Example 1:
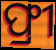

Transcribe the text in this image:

ଫ୍ରୀ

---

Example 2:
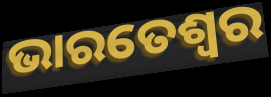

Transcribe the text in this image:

ଭାରତେଶ୍ୱର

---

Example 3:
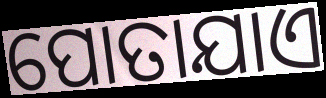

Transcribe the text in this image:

ପୋତାଯାଏ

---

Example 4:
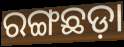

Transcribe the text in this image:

ରଙ୍ଗଛଡ଼ା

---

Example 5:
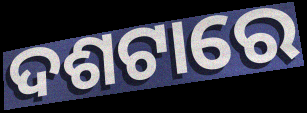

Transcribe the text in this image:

ଦଶଟାରେ